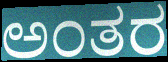
ಅಂತರ